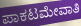
ಪಾಕಟಮೇವಾತಿ